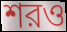
শরও